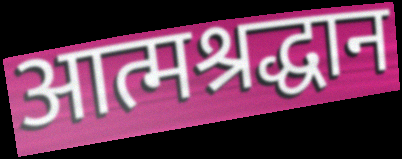
आत्मश्रद्धान